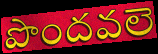
పొందవలె